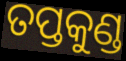
ତପ୍ତକୁଣ୍ଡ